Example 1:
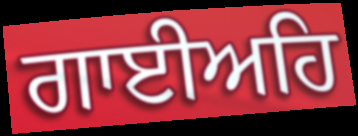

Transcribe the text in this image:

ਗਾਈਅਹਿ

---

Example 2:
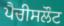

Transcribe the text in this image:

ਪੈਚੀਸਲੌਟ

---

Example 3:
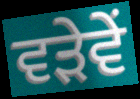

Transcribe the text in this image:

ਵੜੇਵੇਂ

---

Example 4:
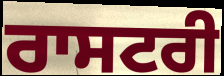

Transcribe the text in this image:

ਰਾਸਟਰੀ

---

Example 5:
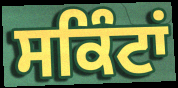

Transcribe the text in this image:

ਸਕਿੰਟਾਂ